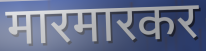
मारमारकर